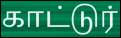
காட்டுர்